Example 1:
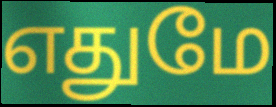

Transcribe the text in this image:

எதுமே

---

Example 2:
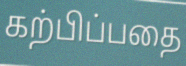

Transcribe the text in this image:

கற்பிப்பதை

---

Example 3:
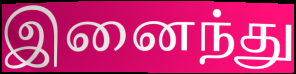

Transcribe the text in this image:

இனைந்து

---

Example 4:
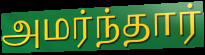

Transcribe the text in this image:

அமர்ந்தார்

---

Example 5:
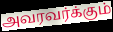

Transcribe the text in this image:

அவரவர்க்கும்